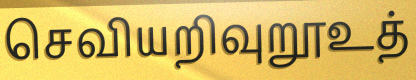
செவியறிவுறூஉத்